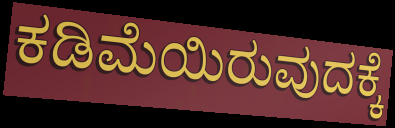
ಕಡಿಮೆಯಿರುವುದಕ್ಕೆ